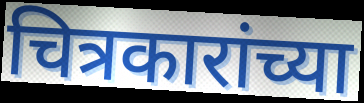
चित्रकारांच्या